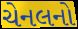
ચેનલનો